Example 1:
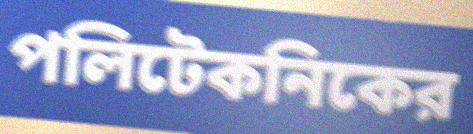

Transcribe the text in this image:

পলিটেকনিকের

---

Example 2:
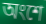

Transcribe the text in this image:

অংশে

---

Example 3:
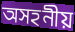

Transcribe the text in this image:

অসহনীয়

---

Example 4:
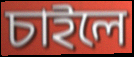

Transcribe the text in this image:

চাইলে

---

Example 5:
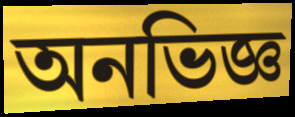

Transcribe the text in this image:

অনভিজ্ঞ